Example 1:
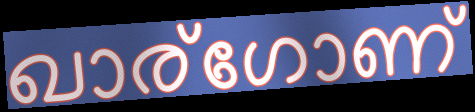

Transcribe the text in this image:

ഖാര്ഗോണ്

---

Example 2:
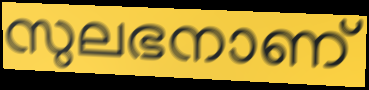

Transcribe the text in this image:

സുലഭനാണ്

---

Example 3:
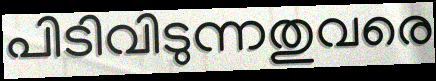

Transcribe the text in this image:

പിടിവിടുന്നതുവരെ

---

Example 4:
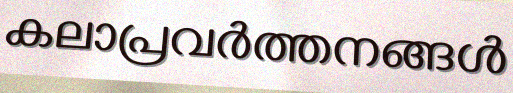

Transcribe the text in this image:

കലാപ്രവർത്തനങ്ങൾ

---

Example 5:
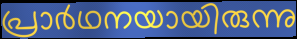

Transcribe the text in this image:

പ്രാർഥനയായിരുന്നു